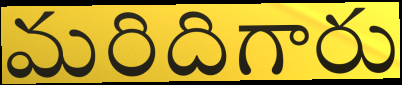
మరిదిగారు